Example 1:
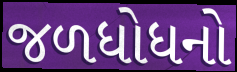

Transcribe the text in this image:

જળધોધનો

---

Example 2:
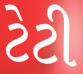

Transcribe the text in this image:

ટેટી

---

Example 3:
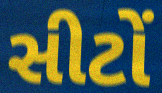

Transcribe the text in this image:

સીટોં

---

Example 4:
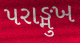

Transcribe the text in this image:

પરાઙ્મુખ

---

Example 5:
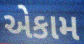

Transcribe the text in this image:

એકામ